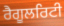
ਰੈਗੂਲਰਿਟੀ